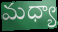
మధ్యా